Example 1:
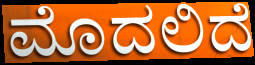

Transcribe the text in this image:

ಮೊದಲಿದೆ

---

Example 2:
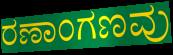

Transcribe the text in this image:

ರಣಾಂಗಣವು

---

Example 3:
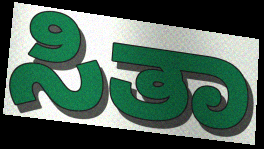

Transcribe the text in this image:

ಸಿತಾ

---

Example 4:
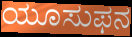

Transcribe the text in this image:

ಯೂಸುಫನ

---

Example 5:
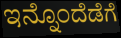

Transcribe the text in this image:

ಇನ್ನೊಂದೆಡೆಗೆ